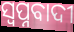
ସ୍ୱପ୍ନବାଦୀ